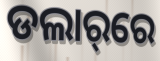
ଡଲାର୍‌ରେ